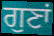
ਗੁਣਾਂ